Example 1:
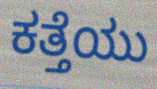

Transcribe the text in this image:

ಕತ್ತೆಯು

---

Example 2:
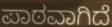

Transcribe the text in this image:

ಪಾಠವಾಗಿದೆ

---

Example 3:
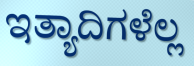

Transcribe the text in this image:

ಇತ್ಯಾದಿಗಳೆಲ್ಲ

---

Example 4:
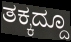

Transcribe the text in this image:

ತಕ್ಕದ್ದೂ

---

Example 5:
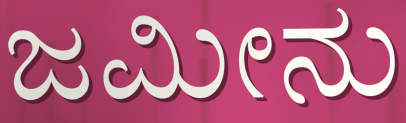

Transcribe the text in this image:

ಜಮೀನು